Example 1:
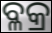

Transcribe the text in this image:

ବ୍ଳକ୍ର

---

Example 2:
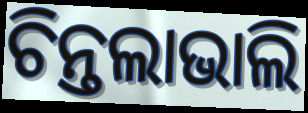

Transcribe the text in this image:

ଚିନ୍ତଲାଭାଲି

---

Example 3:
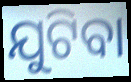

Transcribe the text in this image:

ଯୁଟିବା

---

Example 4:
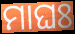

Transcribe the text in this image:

ମାଘଃ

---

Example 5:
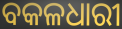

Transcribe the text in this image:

ବକଳଧାରୀ